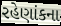
રહેણાંકના